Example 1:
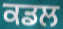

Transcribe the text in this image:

ਕਡਲ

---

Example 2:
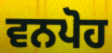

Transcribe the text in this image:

ਵਨਪੋਹ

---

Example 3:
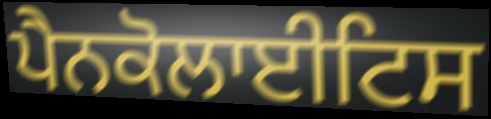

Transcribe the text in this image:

ਪੈਨਕੋਲਾਈਟਿਸ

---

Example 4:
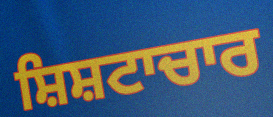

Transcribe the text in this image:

ਸ਼ਿਸ਼ਟਾਚਾਰ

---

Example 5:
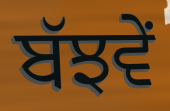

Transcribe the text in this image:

ਬੱਝਵੇਂ